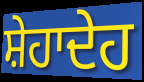
ਸ਼ੇਹਾਦੇਹ